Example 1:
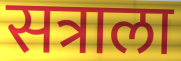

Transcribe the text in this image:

सत्राला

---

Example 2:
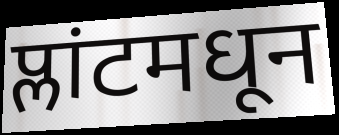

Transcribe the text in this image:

प्लांटमधून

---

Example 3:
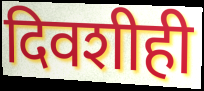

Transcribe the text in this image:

दिवशीही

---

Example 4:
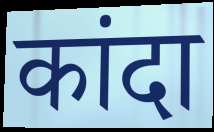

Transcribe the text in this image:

कांदा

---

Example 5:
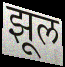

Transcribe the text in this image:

झूल